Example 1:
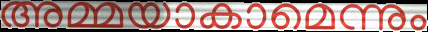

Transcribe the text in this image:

അമ്മയാകാമെന്നും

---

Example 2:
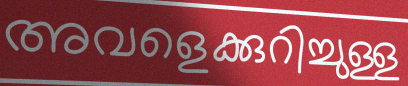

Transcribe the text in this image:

അവളെക്കുറിച്ചുള്ള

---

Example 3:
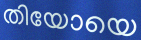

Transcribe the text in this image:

തിയോയെ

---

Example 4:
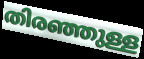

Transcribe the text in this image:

തിരഞ്ഞുള്ള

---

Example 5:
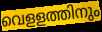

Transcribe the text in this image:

വെളളത്തിനും